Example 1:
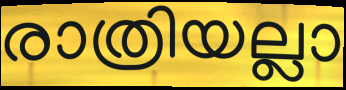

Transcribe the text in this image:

രാത്രിയല്ലാ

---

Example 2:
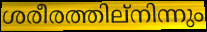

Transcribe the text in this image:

ശരീരത്തില്നിന്നും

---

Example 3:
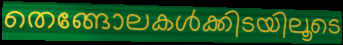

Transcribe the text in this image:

തെങ്ങോലകൾക്കിടയിലൂടെ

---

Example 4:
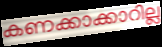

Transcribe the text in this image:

കണക്കാക്കാറില്ല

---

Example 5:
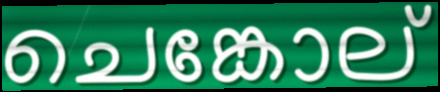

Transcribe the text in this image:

ചെങ്കോല്